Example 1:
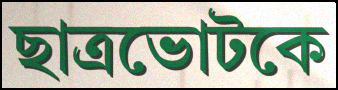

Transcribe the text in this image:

ছাত্রভোটকে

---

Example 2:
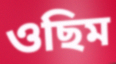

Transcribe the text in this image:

ওছিম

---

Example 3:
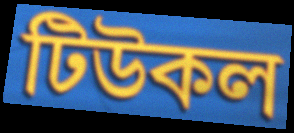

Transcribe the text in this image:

টিউকল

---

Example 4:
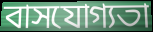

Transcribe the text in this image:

বাসযোগ্যতা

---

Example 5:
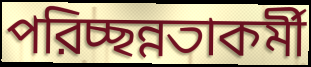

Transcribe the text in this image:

পরিচ্ছন্নতাকর্মী